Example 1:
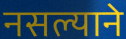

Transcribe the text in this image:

नसल्याने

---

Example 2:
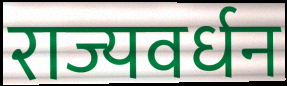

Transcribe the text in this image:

राज्‍यवर्धन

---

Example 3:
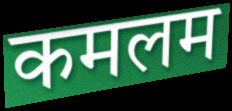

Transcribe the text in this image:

कमलम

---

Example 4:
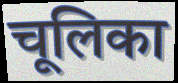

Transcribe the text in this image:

चूलिका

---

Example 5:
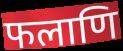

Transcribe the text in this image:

फलाणि